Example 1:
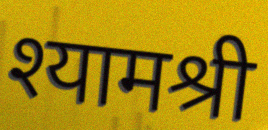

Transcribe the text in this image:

श्यामश्री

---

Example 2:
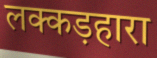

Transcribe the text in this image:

लक्कड़हारा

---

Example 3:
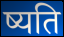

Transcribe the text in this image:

ष्यति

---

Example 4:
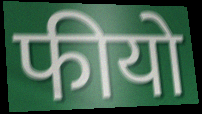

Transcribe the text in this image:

फीयो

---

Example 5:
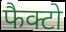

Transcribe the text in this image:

फैक्टो